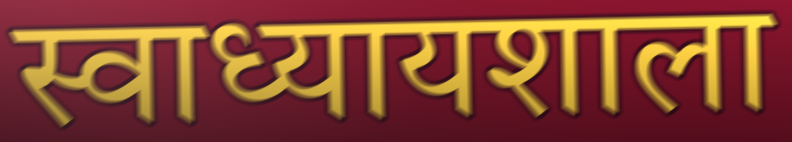
स्वाध्यायशाला